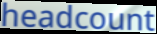
headcount